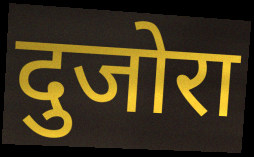
दुजोरा